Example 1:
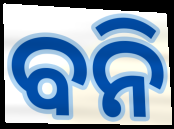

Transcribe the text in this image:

ବନି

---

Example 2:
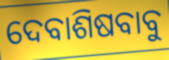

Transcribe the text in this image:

ଦେବାଶିଷବାବୁ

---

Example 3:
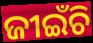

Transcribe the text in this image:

ଜୀଇଁଚି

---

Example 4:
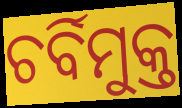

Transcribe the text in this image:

ଚର୍ବିମୁକ୍ତ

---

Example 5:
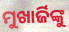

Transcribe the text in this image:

ମୁଖାର୍ଜିଙ୍କୁ